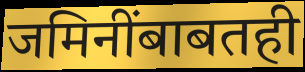
जमिनींबाबतही